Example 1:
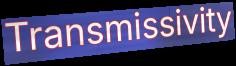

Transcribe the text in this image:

Transmissivity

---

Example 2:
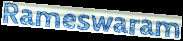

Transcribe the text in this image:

Rameswaram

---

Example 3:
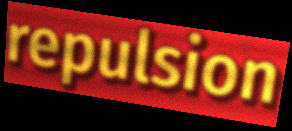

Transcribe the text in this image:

repulsion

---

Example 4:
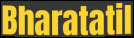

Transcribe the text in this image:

Bharatatil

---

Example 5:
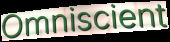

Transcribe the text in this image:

Omniscient